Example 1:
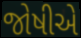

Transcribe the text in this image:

જોષીએ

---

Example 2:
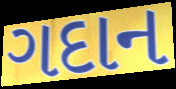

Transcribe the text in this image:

ગદાન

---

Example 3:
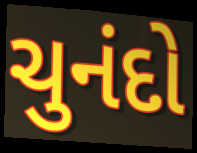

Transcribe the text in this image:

ચુનંદો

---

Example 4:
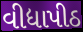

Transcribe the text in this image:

વીદ્યાપીઠ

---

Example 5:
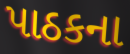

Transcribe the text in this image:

પાઠકના